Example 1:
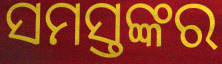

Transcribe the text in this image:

ସମସ୍ତଙ୍କର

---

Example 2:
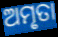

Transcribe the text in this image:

ଅମୃତା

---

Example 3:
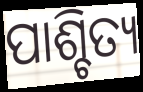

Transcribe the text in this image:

ପାଶ୍ଚିତ୍ୟ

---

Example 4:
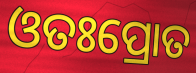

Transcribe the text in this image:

ଓତଃପ୍ରୋତ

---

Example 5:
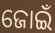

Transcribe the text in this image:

ଜୋଇଁ